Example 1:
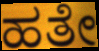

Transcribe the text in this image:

ಹತೇ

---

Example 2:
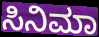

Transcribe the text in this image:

ಸಿನಿಮಾ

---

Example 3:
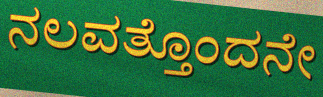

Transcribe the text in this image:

ನಲವತ್ತೊಂದನೇ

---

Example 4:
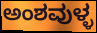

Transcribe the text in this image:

ಅಂಶವುಳ್ಳ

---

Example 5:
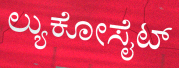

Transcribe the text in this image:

ಲ್ಯುಕೋಸೈಟ್